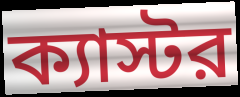
ক্যাস্টর